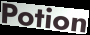
Potion